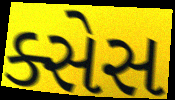
ક્સેસ